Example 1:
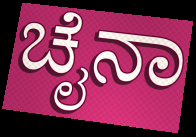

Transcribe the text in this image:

ಚೈನಾ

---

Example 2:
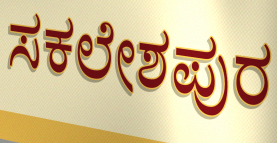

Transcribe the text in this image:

ಸಕಲೇಶಪುರ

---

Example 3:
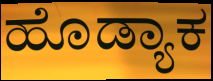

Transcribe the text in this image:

ಹೊಡ್ಯಾಕ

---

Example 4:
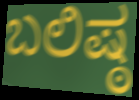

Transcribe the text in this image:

ಬಲಿಷ್ಠ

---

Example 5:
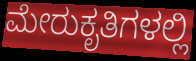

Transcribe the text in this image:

ಮೇರುಕೃತಿಗಳಲ್ಲಿ